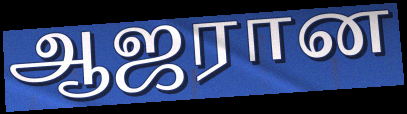
ஆஜரான